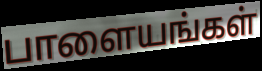
பாளையங்கள்